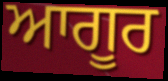
ਆਗੂਰ